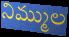
నిమ్ముల